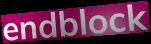
endblock